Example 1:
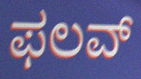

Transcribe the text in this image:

ಫಲವ್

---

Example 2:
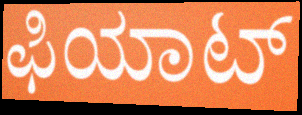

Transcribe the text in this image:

ಫಿಯಾಟ್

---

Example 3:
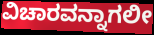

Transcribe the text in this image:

ವಿಚಾರವನ್ನಾಗಲೀ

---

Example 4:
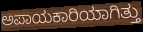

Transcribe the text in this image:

ಅಪಾಯಕಾರಿಯಾಗಿತ್ತು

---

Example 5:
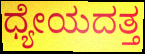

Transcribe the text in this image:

ಧ್ಯೇಯದತ್ತ